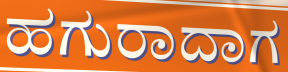
ಹಗುರಾದಾಗ